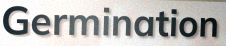
Germination